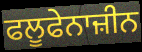
ਫਲੂਫੇਨਾਜ਼ੀਨ